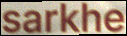
sarkhe